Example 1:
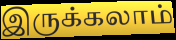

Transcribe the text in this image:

இருக்கலாம்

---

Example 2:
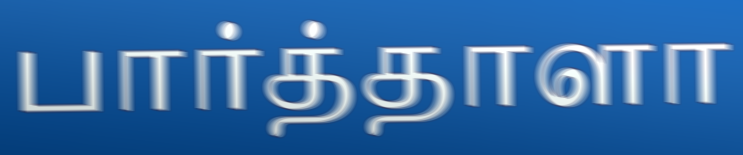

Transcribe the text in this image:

பார்த்தாளா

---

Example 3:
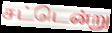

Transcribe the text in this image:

சட்டென்று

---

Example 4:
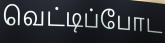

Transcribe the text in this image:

வெட்டிப்போட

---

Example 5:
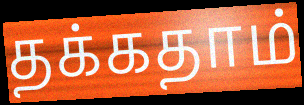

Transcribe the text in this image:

தக்கதாம்